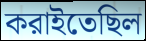
করাইতেছিল